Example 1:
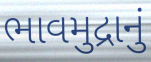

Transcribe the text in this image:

ભાવમુદ્રાનું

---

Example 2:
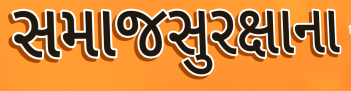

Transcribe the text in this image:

સમાજસુરક્ષાના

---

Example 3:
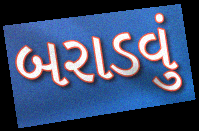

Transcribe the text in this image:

બરાડવું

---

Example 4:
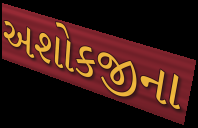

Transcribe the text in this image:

અશોકજીના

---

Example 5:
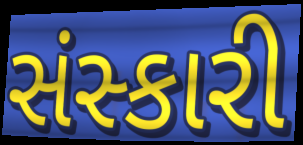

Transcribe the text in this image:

સંસ્કારી